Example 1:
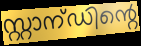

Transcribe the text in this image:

സ്റ്റാന്ഡിന്റെ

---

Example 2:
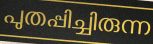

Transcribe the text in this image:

പുതപ്പിച്ചിരുന്ന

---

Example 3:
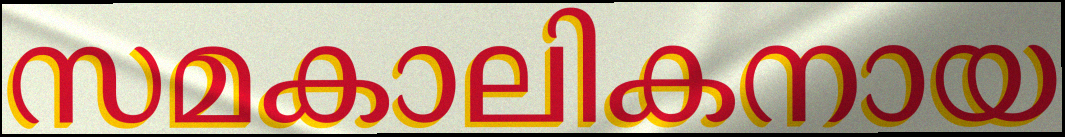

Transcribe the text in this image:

സമകാലികനായ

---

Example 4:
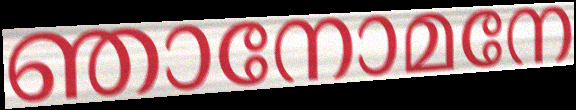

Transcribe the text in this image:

ഞാനോമനേ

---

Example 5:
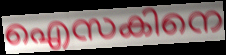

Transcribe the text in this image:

ഐസകിനെ